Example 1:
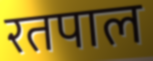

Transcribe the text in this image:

रतपाल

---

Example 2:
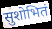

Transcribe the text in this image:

सुशोभितं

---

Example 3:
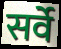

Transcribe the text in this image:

सर्वे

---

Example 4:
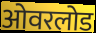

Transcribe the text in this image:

ओवरलोड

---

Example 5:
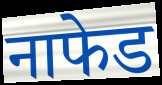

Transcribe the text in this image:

नाफेड